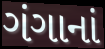
ગંગાનાં